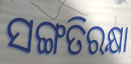
ସଙ୍ଗତିରକ୍ଷା